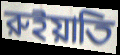
রুইয়াতি